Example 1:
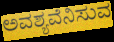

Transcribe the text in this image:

ಅವಶ್ಯವೆನಿಸುವ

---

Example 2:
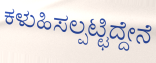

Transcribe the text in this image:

ಕಳುಹಿಸಲ್ಪಟ್ಟಿದ್ದೇನೆ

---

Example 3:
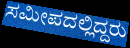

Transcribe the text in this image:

ಸಮೀಪದಲ್ಲಿದ್ದರು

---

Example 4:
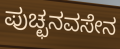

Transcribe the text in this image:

ಪುಚ್ಛನವಸೇನ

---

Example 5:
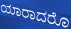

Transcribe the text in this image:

ಯಾರಾದರೊ